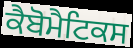
ਕੈਬੋਮੈਟਿਕਸ